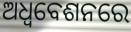
ଅଧ୍ଵବେଶନରେ